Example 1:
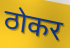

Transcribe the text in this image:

ठोकर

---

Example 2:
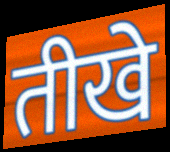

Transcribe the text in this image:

तीखे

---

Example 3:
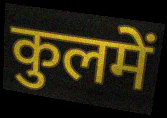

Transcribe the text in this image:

कुलमें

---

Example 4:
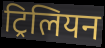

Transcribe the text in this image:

ट्रिलियन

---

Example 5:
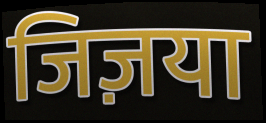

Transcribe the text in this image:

जिज़या